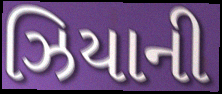
ઝિયાની